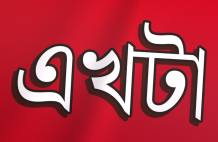
এখটা